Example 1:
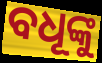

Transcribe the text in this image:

ବଧୂଙ୍କୁ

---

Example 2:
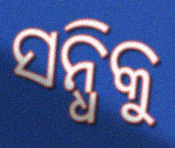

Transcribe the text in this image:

ସନ୍ଧିକୁ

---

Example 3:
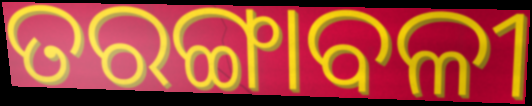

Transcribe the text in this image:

ତରଙ୍ଗାବଳୀ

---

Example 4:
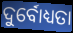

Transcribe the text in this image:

ଦୁର୍ବୋଧ୍ୟତା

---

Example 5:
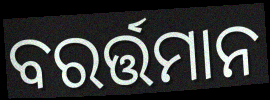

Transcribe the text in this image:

ବରର୍ତ୍ତମାନ